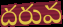
దరువ